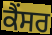
ਕੈੰਸਰ